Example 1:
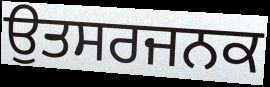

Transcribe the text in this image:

ਉਤਸਰਜਨਕ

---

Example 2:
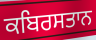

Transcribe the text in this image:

ਕਬਿਰਸਤਾਨ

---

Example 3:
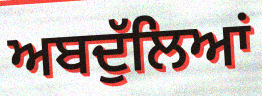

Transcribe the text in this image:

ਅਬਦੁੱਲਿਆਂ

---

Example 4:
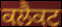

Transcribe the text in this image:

ਕਲੈਕਟ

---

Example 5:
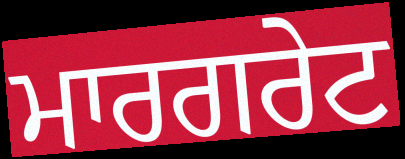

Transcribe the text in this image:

ਮਾਰਗਰੇਟ